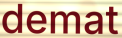
demat